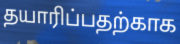
தயாரிப்பதற்காக